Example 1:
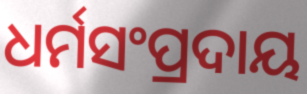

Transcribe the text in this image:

ଧର୍ମସଂପ୍ରଦାୟ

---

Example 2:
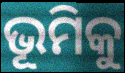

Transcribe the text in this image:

ଭୂମିକୁ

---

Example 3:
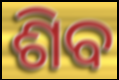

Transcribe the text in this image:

ଶିବ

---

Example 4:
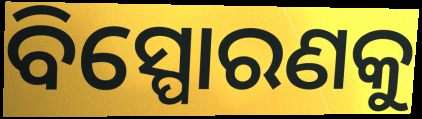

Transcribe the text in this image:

ବିସ୍ପୋରଣକୁ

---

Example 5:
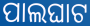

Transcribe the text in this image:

ପାଲଘାଟ